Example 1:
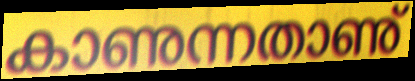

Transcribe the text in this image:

കാണുന്നതാണു്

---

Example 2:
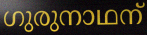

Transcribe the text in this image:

ഗുരുനാഥന്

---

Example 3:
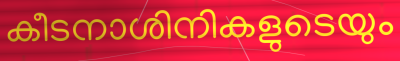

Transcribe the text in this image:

കീടനാശിനികളുടെയും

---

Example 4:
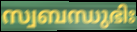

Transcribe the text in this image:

സ്വബന്ധുഭിഃ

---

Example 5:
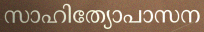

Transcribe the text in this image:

സാഹിത്യോപാസന